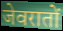
जेवरातों